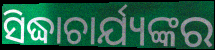
ସିଦ୍ଧାଚାର୍ଯ୍ୟଙ୍କର